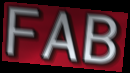
FAB